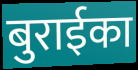
बुराईका